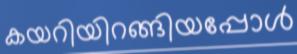
കയറിയിറങ്ങിയപ്പോൾ